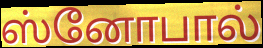
ஸ்னோபால்